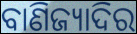
ବାଣିଜ୍ୟାଦିର